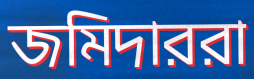
জমিদাররা